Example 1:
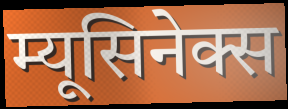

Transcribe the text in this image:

म्यूसिनेक्स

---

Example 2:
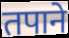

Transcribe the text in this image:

तपाने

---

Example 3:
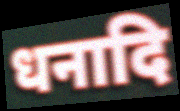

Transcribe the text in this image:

धनादि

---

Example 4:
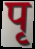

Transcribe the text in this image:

पृ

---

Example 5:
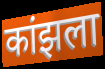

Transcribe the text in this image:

कांझला